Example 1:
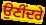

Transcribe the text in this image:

ਉਣੀਂਦਰੇ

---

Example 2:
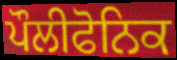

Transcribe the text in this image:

ਪੌਲੀਫੋਨਿਕ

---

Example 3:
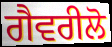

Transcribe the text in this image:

ਗੈਵਰੀਲੋ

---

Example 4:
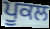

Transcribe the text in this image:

ਪੂਕਲ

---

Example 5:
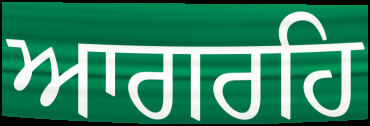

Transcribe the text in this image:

ਆਗਰਹਿ